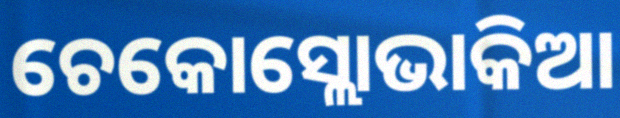
ଚେକୋସ୍ଲୋଭାକିଆ